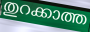
തുറക്കാത്ത